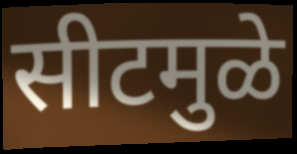
सीटमुळे